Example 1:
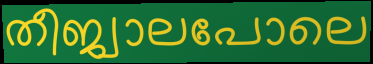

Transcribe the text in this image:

തീജ്വാലപോലെ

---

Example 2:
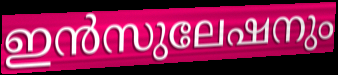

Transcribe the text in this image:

ഇൻസുലേഷനും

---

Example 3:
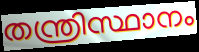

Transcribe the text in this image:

തന്ത്രിസ്ഥാനം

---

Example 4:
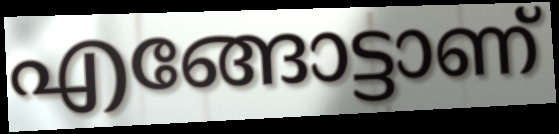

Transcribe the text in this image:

എങ്ങോട്ടാണ്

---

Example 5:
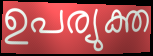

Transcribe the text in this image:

ഉപര്യുക്ത